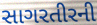
સાગરતીરની